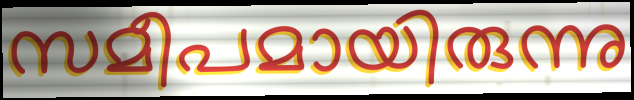
സമീപമായിരുന്നു